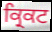
ਕ੍ਰਿਕਟ